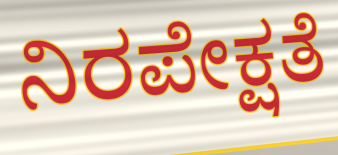
ನಿರಪೇಕ್ಷತೆ